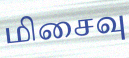
மிசைவு